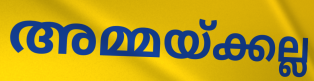
അമ്മയ്ക്കല്ല